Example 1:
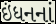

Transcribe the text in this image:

ઇંધનનાં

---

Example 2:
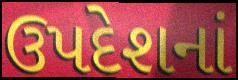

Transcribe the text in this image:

ઉપદેશનાં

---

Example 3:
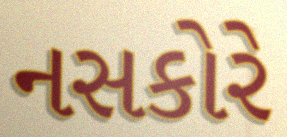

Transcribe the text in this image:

નસકોરે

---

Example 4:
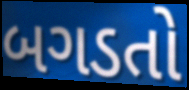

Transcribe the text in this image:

બગડતો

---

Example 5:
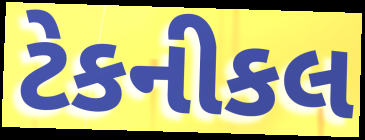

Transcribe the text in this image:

ટેકનીકલ